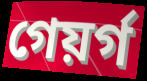
গেয়ৰ্গ